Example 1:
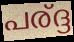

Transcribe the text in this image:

പര്ദ്ദ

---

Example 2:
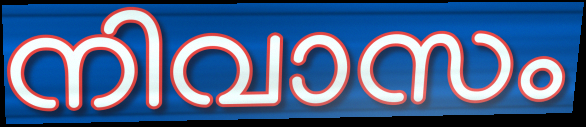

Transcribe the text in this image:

നിവാസം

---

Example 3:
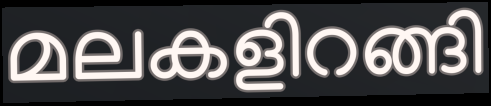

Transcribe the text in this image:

മലകളിറങ്ങി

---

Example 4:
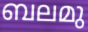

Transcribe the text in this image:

ബലമു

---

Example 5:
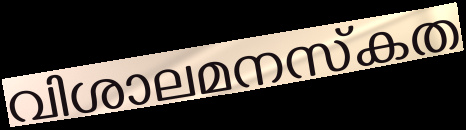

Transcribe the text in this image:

വിശാലമനസ്‌കത